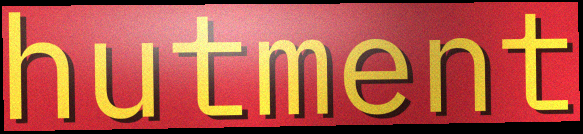
hutment